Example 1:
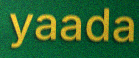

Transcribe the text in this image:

yaada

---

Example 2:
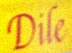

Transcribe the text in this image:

Dile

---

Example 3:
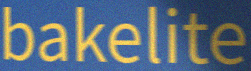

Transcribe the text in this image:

bakelite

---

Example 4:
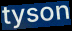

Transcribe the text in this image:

tyson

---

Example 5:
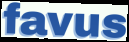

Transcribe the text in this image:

favus